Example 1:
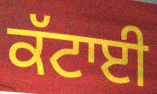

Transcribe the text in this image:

ਕੱਟਾਈ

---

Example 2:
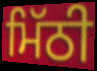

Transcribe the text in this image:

ਮਿੱਠੀ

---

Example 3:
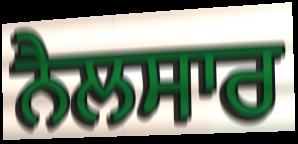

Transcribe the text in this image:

ਨੈਲਸਾਰ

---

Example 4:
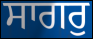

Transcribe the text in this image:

ਸਾਗਰੁ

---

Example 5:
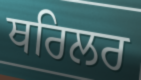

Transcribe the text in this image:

ਥਰਿਲਰ